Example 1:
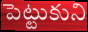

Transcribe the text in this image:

పెట్టుకుని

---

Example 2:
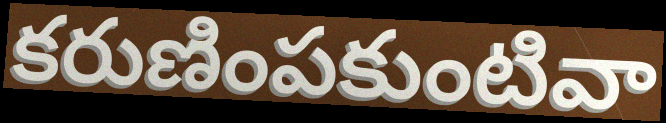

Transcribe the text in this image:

కరుణింపకుంటివా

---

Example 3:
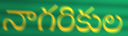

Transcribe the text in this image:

నాగరికుల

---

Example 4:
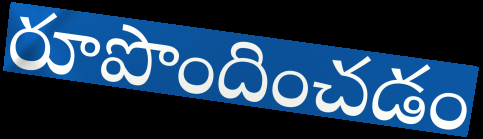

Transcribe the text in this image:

రూపొందించడం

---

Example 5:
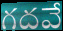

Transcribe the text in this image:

గదవే